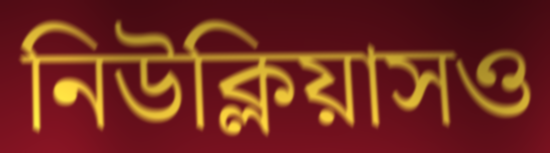
নিউক্লিয়াসও